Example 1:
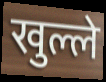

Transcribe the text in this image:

खुल्ले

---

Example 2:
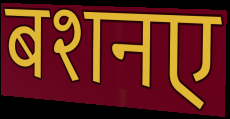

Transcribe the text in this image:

बशनए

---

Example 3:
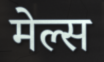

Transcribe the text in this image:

मेल्स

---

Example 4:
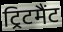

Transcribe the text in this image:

ट्रिटमैंट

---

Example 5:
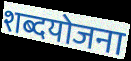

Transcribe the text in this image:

शब्दयोजना